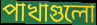
পাখাগুলো